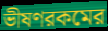
ভীষণরকমের